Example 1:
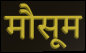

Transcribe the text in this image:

मौसूम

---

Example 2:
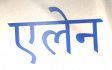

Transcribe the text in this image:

एलेन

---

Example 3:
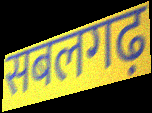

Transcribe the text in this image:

सबलगढ़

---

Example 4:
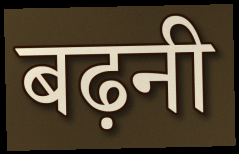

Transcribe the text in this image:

बढ़नी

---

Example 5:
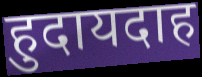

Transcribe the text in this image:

हुदायदाह